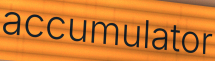
accumulator